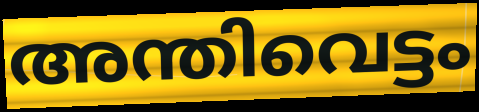
അന്തിവെട്ടം